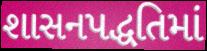
શાસનપદ્ધતિમાં